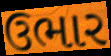
ઉભાર